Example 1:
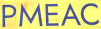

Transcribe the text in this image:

PMEAC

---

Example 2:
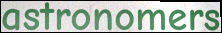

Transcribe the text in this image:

astronomers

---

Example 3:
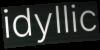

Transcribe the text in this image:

idyllic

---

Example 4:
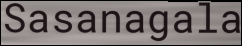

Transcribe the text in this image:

Sasanagala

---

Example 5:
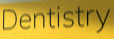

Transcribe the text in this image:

Dentistry